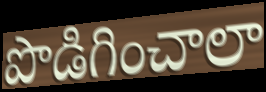
పొడిగించాలా